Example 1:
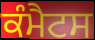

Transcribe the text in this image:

ਕੰਮੈਟਸ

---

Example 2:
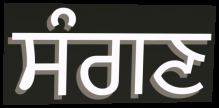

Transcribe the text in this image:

ਸੰਗਣ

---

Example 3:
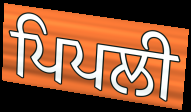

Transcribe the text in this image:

ਪਿਪਲੀ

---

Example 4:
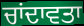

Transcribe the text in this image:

ਚਾਂਦਾਵਤਾ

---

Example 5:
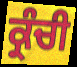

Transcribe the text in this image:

ਕ੍ਰੰਚੀ